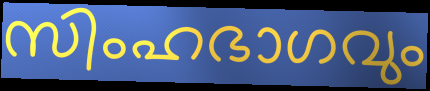
സിംഹഭാഗവും